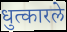
धुत्कारले